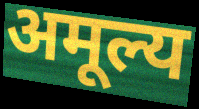
अमूल्य